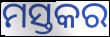
ମସ୍ତକର